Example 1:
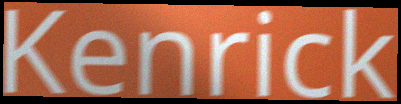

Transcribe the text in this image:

Kenrick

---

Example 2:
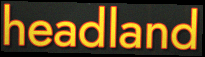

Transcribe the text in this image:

headland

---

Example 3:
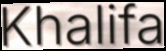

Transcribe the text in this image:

Khalifa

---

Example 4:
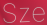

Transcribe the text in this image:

Sze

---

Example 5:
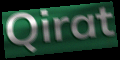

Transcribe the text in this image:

Qirat